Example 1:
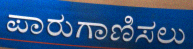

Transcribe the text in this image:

ಪಾರುಗಾಣಿಸಲು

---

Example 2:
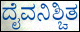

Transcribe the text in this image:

ದೈವನಿಶ್ಚಿತ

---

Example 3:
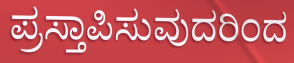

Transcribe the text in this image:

ಪ್ರಸ್ತಾಪಿಸುವುದರಿಂದ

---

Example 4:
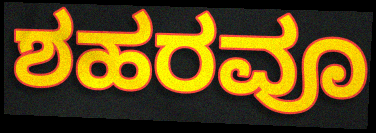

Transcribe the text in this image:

ಶಹರವೂ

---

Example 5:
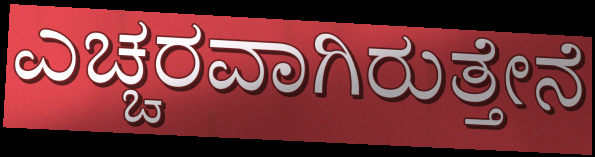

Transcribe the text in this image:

ಎಚ್ಚರವಾಗಿರುತ್ತೇನೆ